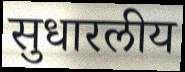
सुधारलीय